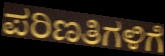
ಪರಿಣತಿಗಳಿಗೆ